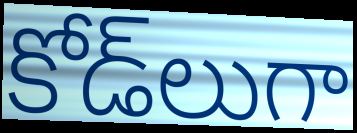
కోడ్‌లుగా